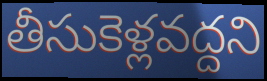
తీసుకెళ్లవద్దని